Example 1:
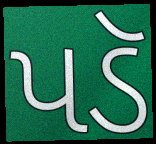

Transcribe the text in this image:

પડૅ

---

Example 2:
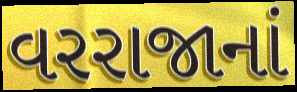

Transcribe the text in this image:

વરરાજાનાં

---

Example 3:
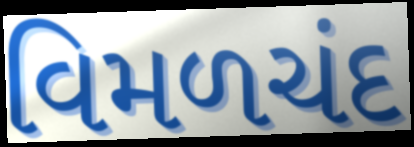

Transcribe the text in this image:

વિમળચંદ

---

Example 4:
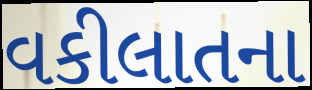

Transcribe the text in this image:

વકીલાતના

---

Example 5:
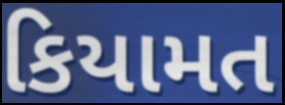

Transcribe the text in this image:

કિયામત